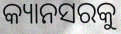
କ୍ୟାନସରକୁ